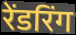
रेंडरिंग